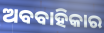
ଅବବାହିକାର